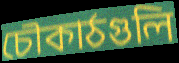
চৌকাঠগুলি